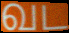
வட